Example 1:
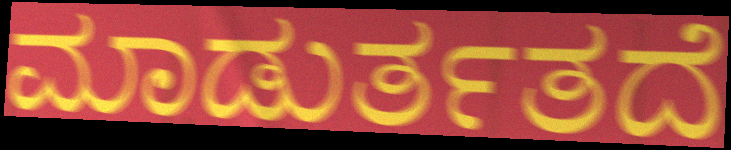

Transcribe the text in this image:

ಮಾಡುರ್ತತದೆ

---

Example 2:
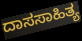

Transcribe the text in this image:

ದಾಸಸಾಹಿತ್ಯ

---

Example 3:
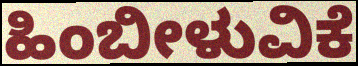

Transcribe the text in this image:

ಹಿಂಬೀಳುವಿಕೆ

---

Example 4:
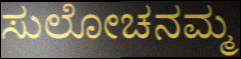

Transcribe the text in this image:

ಸುಲೋಚನಮ್ಮ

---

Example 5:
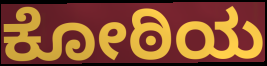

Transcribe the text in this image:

ಕೋಠಿಯ